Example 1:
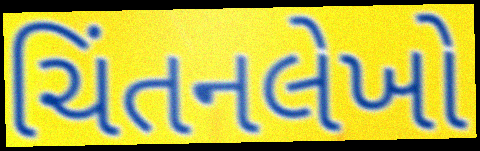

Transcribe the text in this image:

ચિંતનલેખો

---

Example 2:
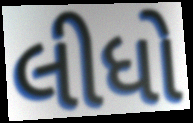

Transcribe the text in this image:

લીધો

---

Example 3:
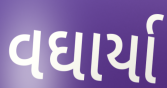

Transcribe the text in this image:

વઘાર્યા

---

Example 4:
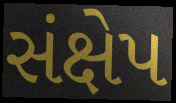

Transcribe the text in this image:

સંક્ષેપ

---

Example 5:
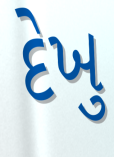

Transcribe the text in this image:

દેખુ